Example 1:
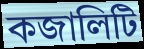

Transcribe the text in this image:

কজালিটি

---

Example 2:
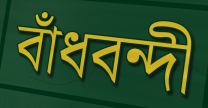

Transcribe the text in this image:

বাঁধবন্দী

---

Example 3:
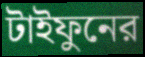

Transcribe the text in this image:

টাইফুনের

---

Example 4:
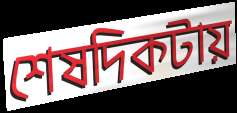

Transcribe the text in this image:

শেষদিকটায়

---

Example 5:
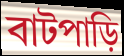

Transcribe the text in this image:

বাটপাড়ি